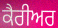
ਕੈਰੀਅਰ